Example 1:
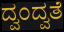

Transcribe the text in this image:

ದ್ವಂದ್ವತೆ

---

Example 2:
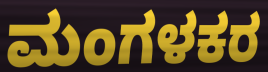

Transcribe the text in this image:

ಮಂಗಳಕರ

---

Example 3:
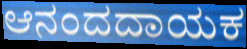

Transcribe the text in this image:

ಆನಂದದಾಯಕ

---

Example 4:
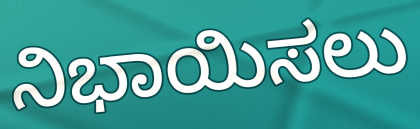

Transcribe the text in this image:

ನಿಭಾಯಿಸಲು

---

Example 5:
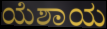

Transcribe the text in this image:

ಯೆಶಾಯ